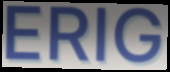
ERIG